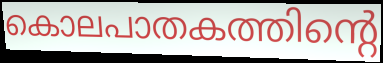
കൊലപാതകത്തിന്റെ